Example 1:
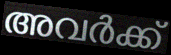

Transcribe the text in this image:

അവർക്ക്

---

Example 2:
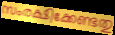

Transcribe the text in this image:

സംരക്ഷിക്കേണ്ടതു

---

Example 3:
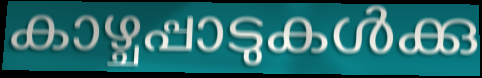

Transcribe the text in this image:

കാഴ്ചപ്പാടുകൾക്കു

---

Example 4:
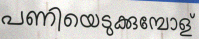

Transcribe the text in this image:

പണിയെടുക്കുമ്പോള്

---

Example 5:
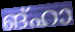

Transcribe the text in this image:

ങ്ഹാ